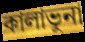
কালাভুনা